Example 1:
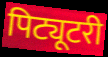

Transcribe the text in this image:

पिट्यूटरी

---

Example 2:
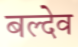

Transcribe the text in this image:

बल्देव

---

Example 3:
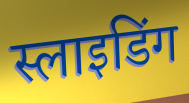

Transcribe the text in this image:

स्लाइडिंग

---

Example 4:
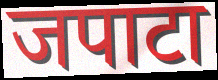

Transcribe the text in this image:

जपाटा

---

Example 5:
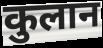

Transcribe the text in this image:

कुलान